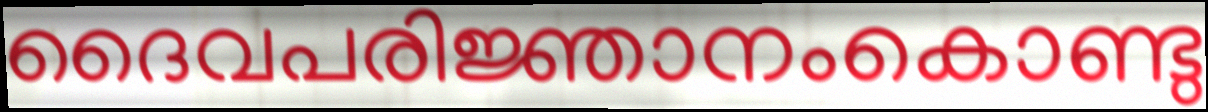
ദൈവപരിജ്ഞാനംകൊണ്ടു